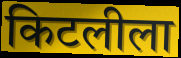
किटलीला